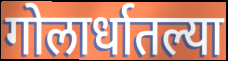
गोलार्धातल्या